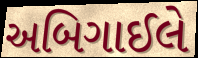
અબિગાઈલે